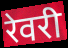
रेवरी